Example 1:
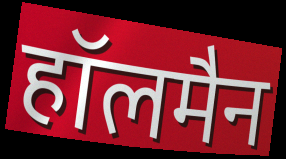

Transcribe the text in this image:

हॉलमैन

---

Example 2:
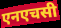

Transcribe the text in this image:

एनएचसी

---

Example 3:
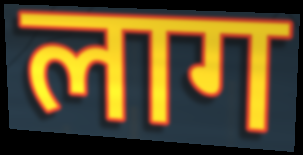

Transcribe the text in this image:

लाग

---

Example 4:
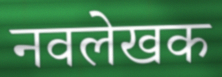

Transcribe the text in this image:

नवलेखक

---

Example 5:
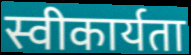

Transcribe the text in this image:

स्वीकार्यता